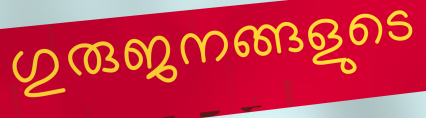
ഗുരുജനങ്ങളുടെ